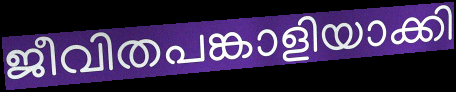
ജീവിതപങ്കാളിയാക്കി